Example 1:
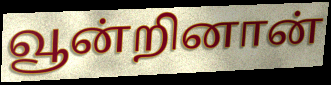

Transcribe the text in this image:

வூன்றினான்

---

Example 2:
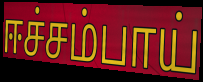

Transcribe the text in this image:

ஈச்சம்பாய்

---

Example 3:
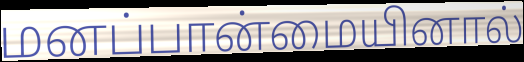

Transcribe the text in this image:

மனப்பான்மையினால்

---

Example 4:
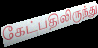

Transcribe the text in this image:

கேட்பதிலிருந்து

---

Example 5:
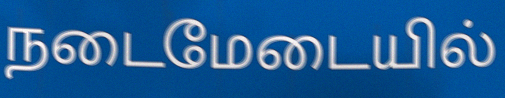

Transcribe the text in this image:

நடைமேடையில்